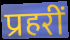
प्रहरीं